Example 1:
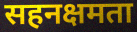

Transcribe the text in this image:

सहनक्षमता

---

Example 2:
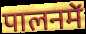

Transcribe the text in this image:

पालनमें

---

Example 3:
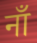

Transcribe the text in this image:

नाँ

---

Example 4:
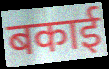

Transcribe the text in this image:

बकाई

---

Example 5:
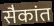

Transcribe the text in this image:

सैकांत